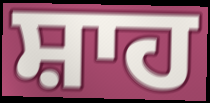
ਸ਼ਾਹ